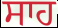
ਸਾਹ